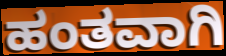
ಹಂತವಾಗಿ